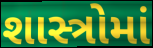
શાસ્ત્રોમાં